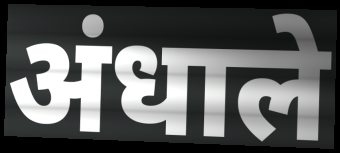
अंधाले